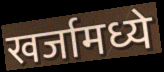
खर्जामध्ये